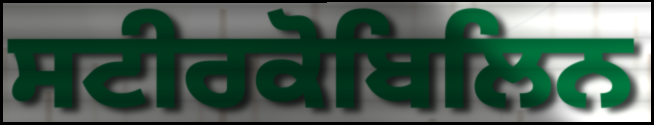
ਸਟੀਰਕੋਬਿਲਿਨ